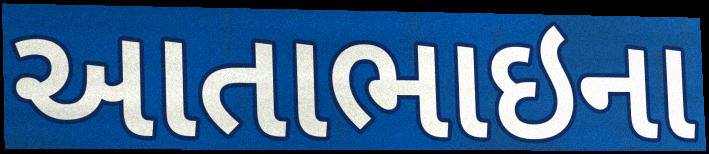
આતાભાઇના